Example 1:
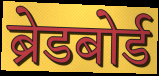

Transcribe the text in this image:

ब्रेडबोर्ड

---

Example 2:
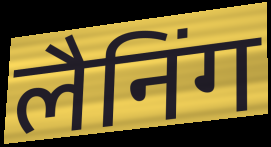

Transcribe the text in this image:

लैनिंग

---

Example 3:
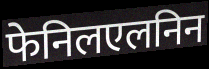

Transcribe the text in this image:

फेनिलएलनिन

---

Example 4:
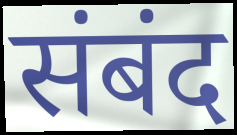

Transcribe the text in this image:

संबंद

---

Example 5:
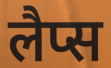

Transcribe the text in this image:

लैप्स